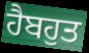
ਹੈਬਹੁਤ